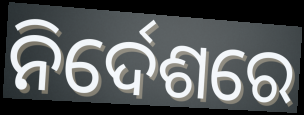
ନିର୍ଦେଶରେ